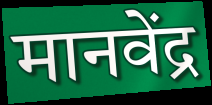
मानवेंद्र